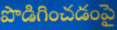
పొడిగించడంపై